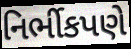
નિર્ભીકપણે